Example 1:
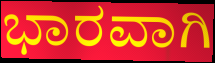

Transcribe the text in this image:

ಭಾರವಾಗಿ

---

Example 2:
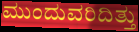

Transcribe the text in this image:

ಮುಂದುವರಿದಿತ್ತು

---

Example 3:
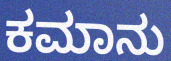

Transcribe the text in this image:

ಕಮಾನು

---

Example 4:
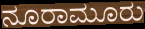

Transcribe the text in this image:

ನೂರಾಮೂರು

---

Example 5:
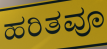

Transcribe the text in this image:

ಹರಿತವೂ